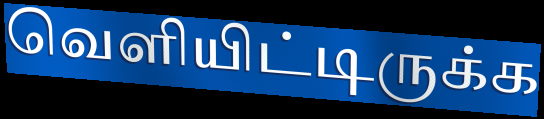
வெளியிட்டிருக்க